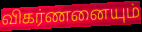
விகர்ணனையும்